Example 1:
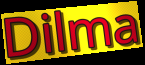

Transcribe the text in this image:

Dilma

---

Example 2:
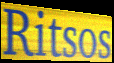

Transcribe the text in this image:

Ritsos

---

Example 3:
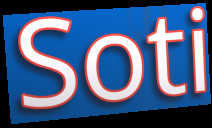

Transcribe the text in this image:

Soti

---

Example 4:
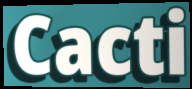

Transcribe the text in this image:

Cacti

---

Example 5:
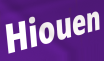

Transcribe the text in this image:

Hiouen